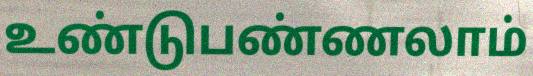
உண்டுபண்ணலாம்